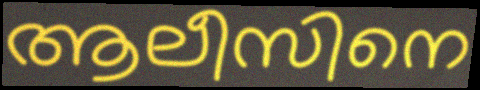
ആലീസിനെ